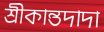
শ্রীকান্তদাদা